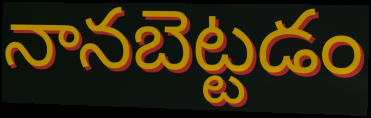
నానబెట్టడం